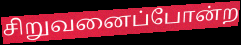
சிறுவனைப்போன்ற